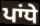
ਪਾਂਧੇ